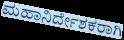
ಮಹಾನಿರ್ದೇಶಕರಾಗಿ